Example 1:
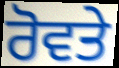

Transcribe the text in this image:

ਰੋਵਤੇ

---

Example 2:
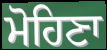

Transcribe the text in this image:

ਮੋਹਿਣਾ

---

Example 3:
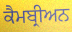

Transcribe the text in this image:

ਕੈਮਬ੍ਰੀਅਨ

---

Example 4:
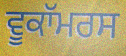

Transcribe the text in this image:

ਵੂਕਾੱਮਰਸ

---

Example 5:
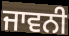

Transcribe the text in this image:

ਜਾਵਨੀ